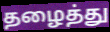
தழைத்து